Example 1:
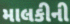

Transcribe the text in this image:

માલકીની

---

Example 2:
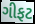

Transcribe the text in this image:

ગીફટ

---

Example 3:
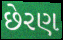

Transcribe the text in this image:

છેરણ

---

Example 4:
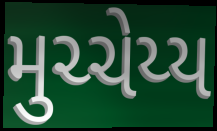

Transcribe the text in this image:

મુચ્ચેય્ય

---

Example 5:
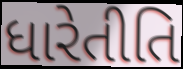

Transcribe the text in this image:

ધારેતીતિ